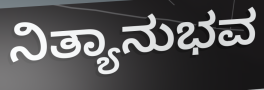
ನಿತ್ಯಾನುಭವ